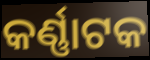
କର୍ଣ୍ଣାଟକ